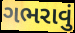
ગભરાવું